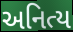
અનિત્ય